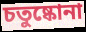
চতুষ্কোনা